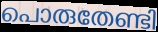
പൊരുതേണ്ടി